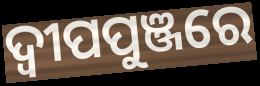
ଦ୍ବୀପପୁଞ୍ଜରେ